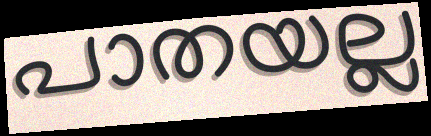
പാതയല്ല